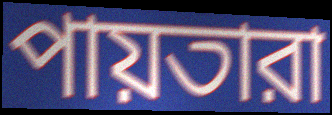
পায়তারা